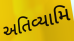
અતિવ્યામિ